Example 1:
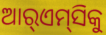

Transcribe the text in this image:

ଆର୍‌ଏମ୍‌ସିକୁ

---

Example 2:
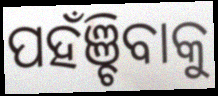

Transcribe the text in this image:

ପହଁଞ୍ଚିବାକୁ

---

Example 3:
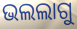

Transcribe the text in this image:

ଭଲଲାଗୁ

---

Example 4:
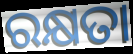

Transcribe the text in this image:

ରକ୍ଷତା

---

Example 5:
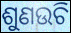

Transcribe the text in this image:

ଶୁଣଉଚି